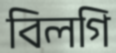
বিলগি